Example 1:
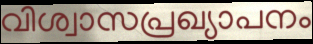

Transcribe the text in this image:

വിശ്വാസപ്രഖ്യാപനം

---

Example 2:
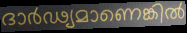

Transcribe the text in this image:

ദാർഢ്യമാണെങ്കിൽ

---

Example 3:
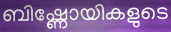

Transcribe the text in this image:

ബിഷ്ണോയികളുടെ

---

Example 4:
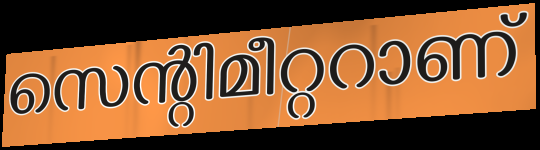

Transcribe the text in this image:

സെന്റിമീറ്ററാണ്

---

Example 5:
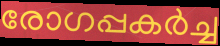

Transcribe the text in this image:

രോഗപ്പകർച്ച